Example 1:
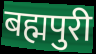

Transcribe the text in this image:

बह्मपुरी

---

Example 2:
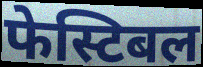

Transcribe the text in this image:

फेस्टिबल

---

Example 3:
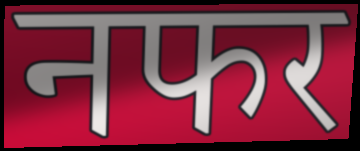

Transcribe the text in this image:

नफर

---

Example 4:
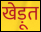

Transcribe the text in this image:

खेड़ूत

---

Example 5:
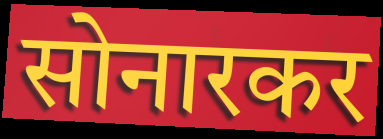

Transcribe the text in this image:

सोनारकर